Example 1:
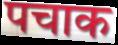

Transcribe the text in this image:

पचाक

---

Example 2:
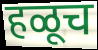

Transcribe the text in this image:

हळूच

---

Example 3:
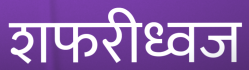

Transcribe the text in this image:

शफरीध्वज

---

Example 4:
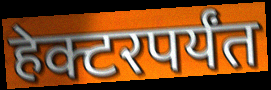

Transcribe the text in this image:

हेक्टरपर्यंत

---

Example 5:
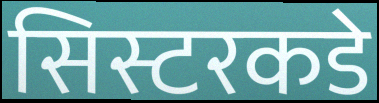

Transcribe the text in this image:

सिस्टरकडे